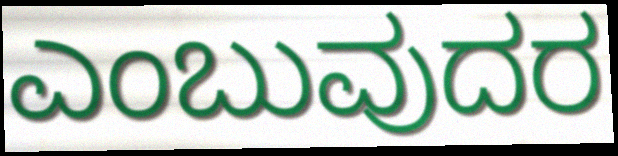
ಎಂಬುವುದರ